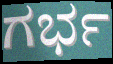
ಗರ್ಭ